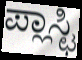
ಪ್ಲಾಸ್ಟಿ